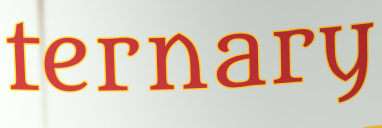
ternary